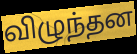
விழுந்தன